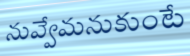
నువ్వేమనుకుంటే